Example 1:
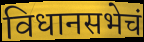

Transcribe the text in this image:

विधानसभेचं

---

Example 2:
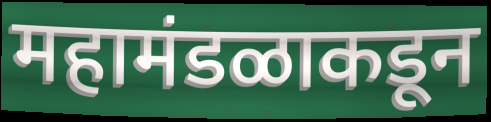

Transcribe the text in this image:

महामंडळाकडून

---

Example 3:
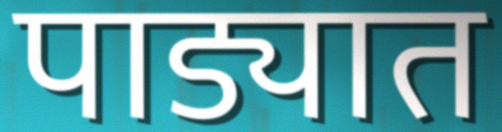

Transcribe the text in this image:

पाड्यात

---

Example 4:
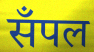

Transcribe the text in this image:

सँपल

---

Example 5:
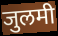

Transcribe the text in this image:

जुलमी